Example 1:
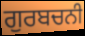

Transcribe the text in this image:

ਗੁਰਬਚਨੀ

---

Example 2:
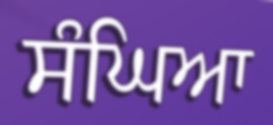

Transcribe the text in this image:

ਸੰਘਿਆ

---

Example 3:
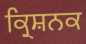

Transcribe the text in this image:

ਕ੍ਰਿਸ਼ਨਕ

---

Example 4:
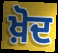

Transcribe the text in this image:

ਖ਼ੋਦ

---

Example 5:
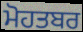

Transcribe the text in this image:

ਮੋਹਤਬਰ